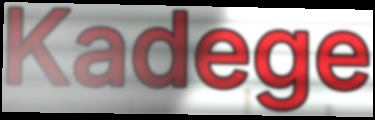
Kadege